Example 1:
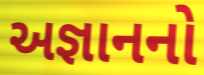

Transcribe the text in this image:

અજ્ઞાનનો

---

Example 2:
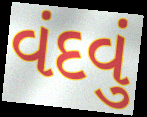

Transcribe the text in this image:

વંદવું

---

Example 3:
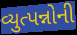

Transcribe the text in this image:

વ્યુત્પન્નોની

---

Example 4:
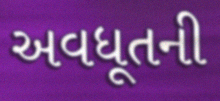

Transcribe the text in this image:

અવધૂતની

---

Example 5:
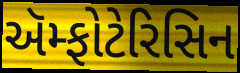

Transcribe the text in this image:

ઍમ્ફોટેરિસિન